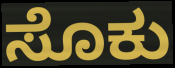
ಸೊಕು